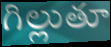
గిల్లుతూ